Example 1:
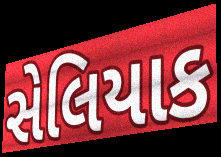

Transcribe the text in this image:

સેલિયાક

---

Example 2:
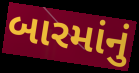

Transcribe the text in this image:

બારમાંનું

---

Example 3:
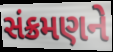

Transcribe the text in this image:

સંક્રમણને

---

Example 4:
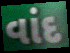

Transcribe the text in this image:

વાંદ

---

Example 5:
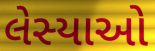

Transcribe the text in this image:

લેસ્યાઓ